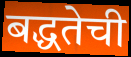
बद्धतेची